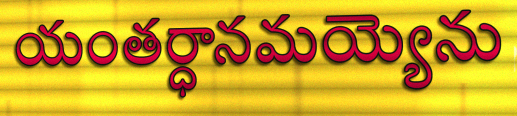
యంతర్ధానమయ్యెను